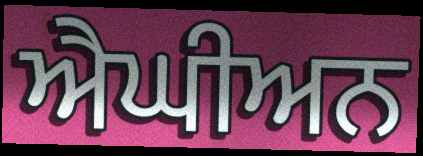
ਐਘੀਅਨ